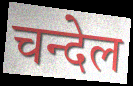
चन्देल